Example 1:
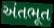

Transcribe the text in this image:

અંતભૂત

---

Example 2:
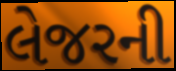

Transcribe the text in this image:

લેજરની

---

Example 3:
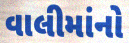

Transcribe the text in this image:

વાલીમાંનો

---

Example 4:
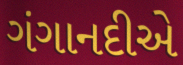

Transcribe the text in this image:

ગંગાનદીએ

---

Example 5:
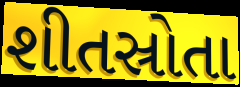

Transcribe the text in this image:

શીતસ્રોતા